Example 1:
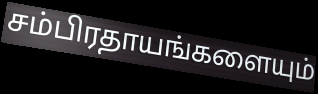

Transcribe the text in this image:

சம்பிரதாயங்களையும்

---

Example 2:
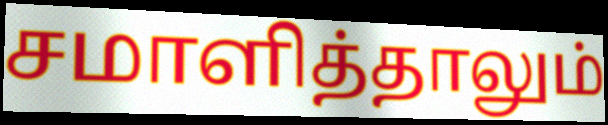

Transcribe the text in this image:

சமாளித்தாலும்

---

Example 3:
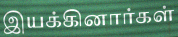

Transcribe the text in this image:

இயக்கினார்கள்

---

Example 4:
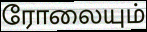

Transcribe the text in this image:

ரோலையும்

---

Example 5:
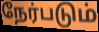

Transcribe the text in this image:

நேர்படும்